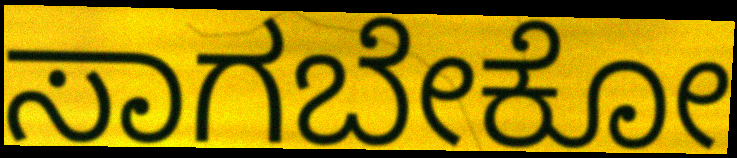
ಸಾಗಬೇಕೋ